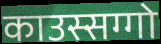
काउस्सग्गो